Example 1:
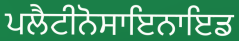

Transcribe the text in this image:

ਪਲੈਟੀਨੋਸਾਇਨਾਇਡ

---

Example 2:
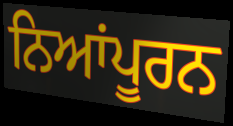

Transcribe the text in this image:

ਨਿਆਂਪੂਰਨ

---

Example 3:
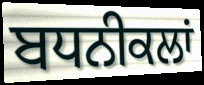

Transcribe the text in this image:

ਬਧਨੀਕਲਾਂ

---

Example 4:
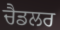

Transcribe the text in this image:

ਚੈਡਲਰ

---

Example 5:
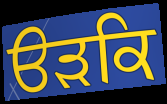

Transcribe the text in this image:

ੳੜਕਿ